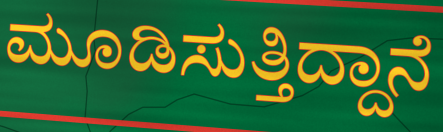
ಮೂಡಿಸುತ್ತಿದ್ದಾನೆ